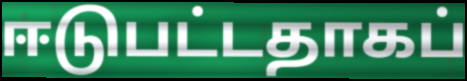
ஈடுபட்டதாகப்